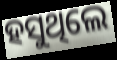
ହସୁଥିଲେ